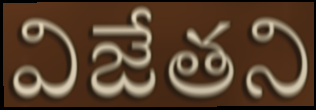
విజేతని